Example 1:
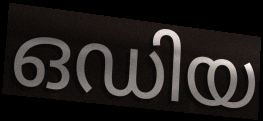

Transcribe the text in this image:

ഒഡിയ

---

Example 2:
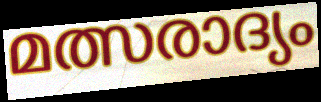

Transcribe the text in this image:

മത്സരാദ്യം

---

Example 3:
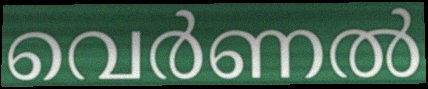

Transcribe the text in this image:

വെർണൽ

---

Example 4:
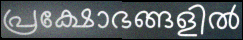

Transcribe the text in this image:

പ്രക്ഷോഭങ്ങളിൽ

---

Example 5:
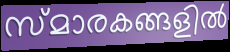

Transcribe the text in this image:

സ്മാരകങ്ങളിൽ